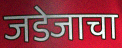
जडेजाचा